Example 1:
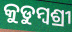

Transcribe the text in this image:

କୁଡୁମ୍ବଶ୍ରୀ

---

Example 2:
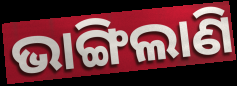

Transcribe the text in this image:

ଭାଙ୍ଗିଲାଣି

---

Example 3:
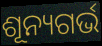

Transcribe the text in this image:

ଶୂନ୍ୟଗର୍ଭ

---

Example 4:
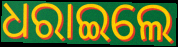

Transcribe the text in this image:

ଧରାଇଲେ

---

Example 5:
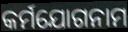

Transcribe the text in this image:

କର୍ମଯୋଗନାମ